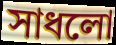
সাধলো